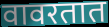
वावरतात